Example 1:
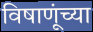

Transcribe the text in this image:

विषाणूंच्या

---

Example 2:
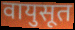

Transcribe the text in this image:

वायुसूत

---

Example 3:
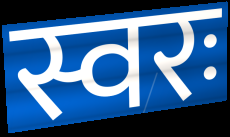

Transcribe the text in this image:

स्वरः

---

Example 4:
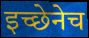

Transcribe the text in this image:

इच्छेनेच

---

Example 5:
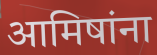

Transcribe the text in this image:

आमिषांना